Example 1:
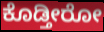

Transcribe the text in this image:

ಕೊಡ್ತೀರೋ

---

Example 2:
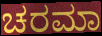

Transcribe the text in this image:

ಚರಮಾ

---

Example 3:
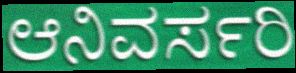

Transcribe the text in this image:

ಆನಿವರ್ಸರಿ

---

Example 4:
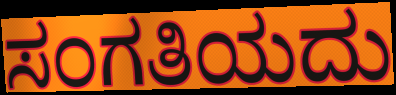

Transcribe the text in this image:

ಸಂಗತಿಯದು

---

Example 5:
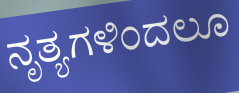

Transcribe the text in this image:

ನೃತ್ಯಗಳಿಂದಲೂ